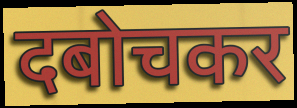
दबोचकर